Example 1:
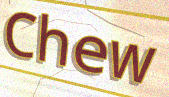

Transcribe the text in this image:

Chew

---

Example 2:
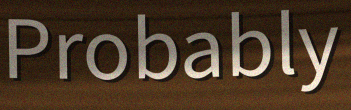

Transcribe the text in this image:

Probably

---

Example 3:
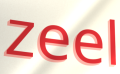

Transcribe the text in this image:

zeel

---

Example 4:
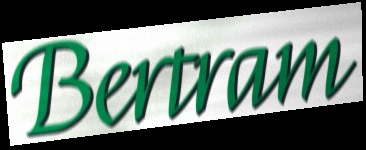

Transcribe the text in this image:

Bertram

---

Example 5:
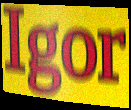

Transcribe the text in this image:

Igor